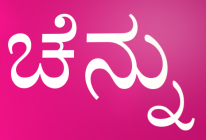
ಚೆನ್ನು